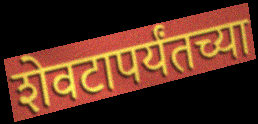
शेवटापर्यंतच्या